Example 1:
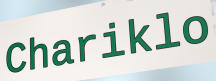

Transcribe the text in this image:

Chariklo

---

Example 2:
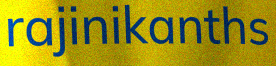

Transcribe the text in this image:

rajinikanths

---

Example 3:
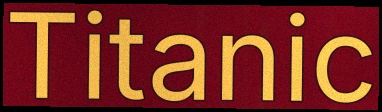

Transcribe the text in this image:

Titanic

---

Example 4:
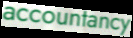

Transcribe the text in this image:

accountancy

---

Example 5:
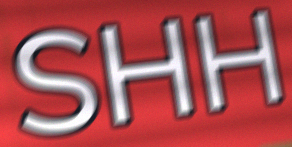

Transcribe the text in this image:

SHH